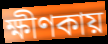
ক্ষীণকায়